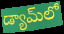
డ్యామ్‌లో